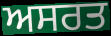
ਅਸਰਤ